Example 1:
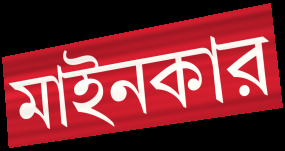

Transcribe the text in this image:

মাইনকার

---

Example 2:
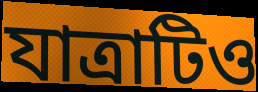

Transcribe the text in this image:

যাত্রাটিও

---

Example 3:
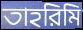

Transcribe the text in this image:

তাহরিমি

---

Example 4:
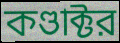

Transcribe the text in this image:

কণ্ডাক্টর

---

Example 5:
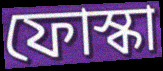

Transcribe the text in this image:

ফোস্কা